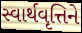
સ્વાર્થવૃત્તિને